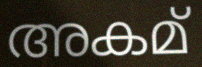
അകമ്